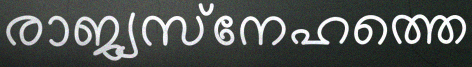
രാജ്യസ്‌നേഹത്തെ